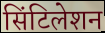
सिंटिलेशन